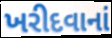
ખરીદવાનાં